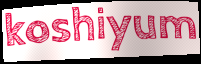
koshiyum